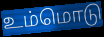
உம்மொடு